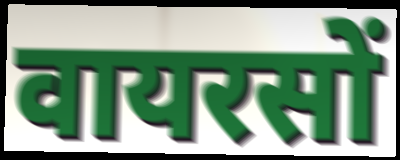
वायरसों